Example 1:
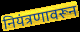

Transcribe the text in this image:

नियंत्रणावरून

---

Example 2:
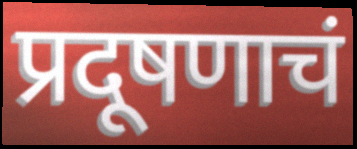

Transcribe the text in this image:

प्रदूषणाचं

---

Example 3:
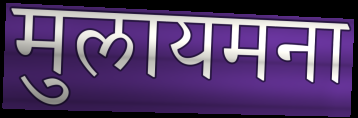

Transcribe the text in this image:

मुलायमना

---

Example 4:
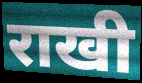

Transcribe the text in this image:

राखी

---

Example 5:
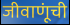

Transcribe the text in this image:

जीवाणूंची